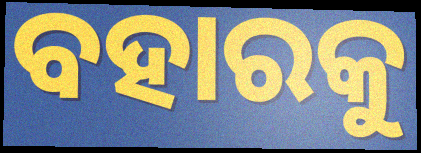
ବହାରକୁ